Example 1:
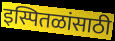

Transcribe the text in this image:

इस्पितळांसाठी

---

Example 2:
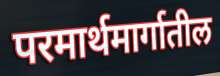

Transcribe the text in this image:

परमार्थमार्गातील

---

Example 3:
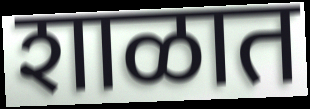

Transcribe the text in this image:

शाळात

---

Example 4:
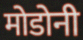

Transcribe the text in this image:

मोडोनी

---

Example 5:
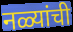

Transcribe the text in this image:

नळ्यांची